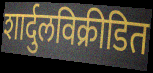
शार्दुलविक्रीडित